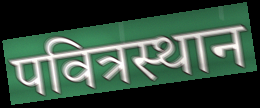
पवित्रस्‍थान